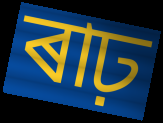
ৰাঢ়